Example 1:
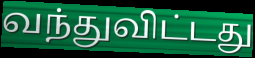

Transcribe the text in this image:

வந்துவிட்டது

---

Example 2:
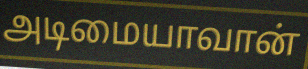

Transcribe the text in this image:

அடிமையாவான்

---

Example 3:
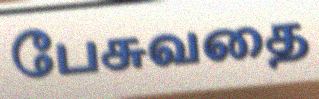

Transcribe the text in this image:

பேசுவதை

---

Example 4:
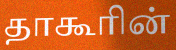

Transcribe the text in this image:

தாகூரின்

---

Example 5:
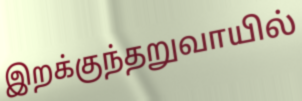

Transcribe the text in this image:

இறக்குந்தறுவாயில்